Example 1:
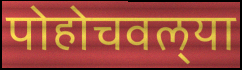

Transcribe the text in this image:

पोहोचवल्या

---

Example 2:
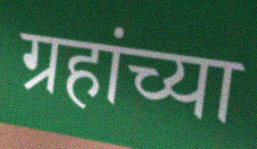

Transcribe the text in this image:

ग्रहांच्या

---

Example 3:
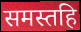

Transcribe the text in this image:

समस्तहि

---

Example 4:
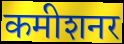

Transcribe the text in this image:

कमीशनर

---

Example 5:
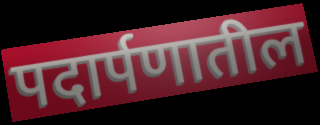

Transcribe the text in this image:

पदार्पणातील